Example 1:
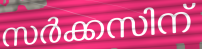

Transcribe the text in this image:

സർക്കസിന്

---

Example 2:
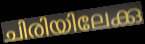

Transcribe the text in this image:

ചിരിയിലേക്കു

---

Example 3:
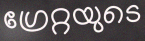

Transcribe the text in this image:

ഗ്രേറ്റയുടെ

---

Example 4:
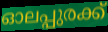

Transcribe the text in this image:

ഓലപ്പുരക്ക്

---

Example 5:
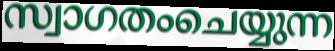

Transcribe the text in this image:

സ്വാഗതംചെയ്യുന്ന